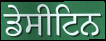
ਡੇਸੀਟਿਨ